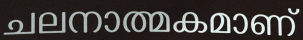
ചലനാത്മകമാണ്